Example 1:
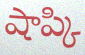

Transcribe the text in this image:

షాప్కి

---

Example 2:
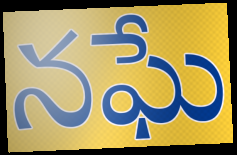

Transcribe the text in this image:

నఘే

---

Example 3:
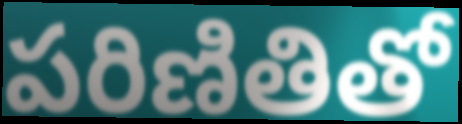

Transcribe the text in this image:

పరిణితితో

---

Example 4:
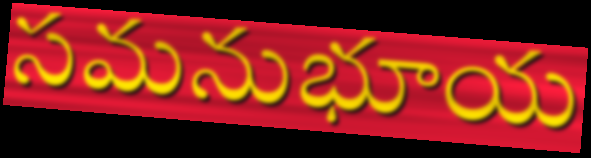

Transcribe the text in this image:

సమనుభూయ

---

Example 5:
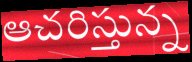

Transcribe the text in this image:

ఆచరిస్తున్న